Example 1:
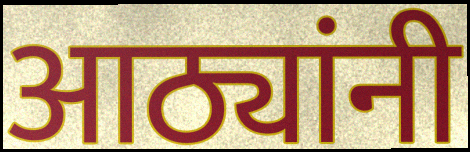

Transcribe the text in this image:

आठ्यांनी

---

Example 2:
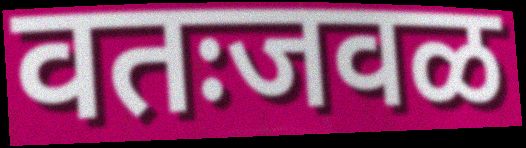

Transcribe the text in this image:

वतःजवळ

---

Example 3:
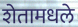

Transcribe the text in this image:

शेतामधले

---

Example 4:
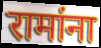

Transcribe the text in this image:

रामांना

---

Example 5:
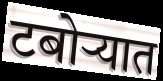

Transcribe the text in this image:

टबोऱ्यात